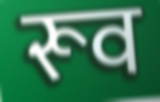
रूव